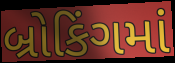
બ્રોકિંગમાં